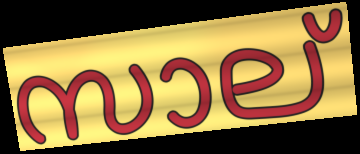
സാല്